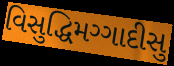
વિસુદ્ધિમગ્ગાદીસુ